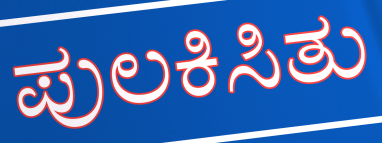
ಪುಲಕಿಸಿತು